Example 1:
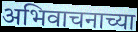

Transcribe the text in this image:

अभिवाचनाच्या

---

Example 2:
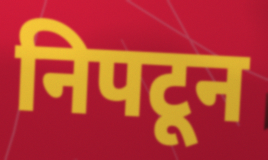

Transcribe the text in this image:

निपटून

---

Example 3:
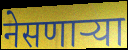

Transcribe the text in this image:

नेसणाऱ्या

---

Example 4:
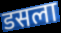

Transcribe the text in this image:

डसला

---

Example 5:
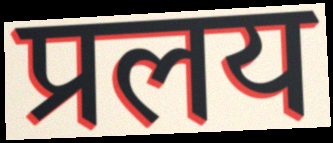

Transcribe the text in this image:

प्रलय